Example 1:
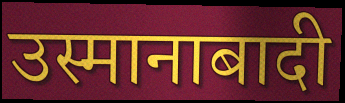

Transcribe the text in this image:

उस्मानाबादी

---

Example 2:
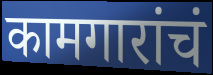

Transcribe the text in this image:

कामगारांचं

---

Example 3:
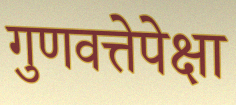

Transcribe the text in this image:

गुणवत्तेपेक्षा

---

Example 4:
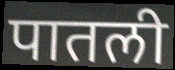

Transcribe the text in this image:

पातली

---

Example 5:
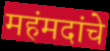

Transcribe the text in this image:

महंमदांचे